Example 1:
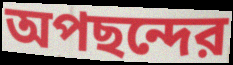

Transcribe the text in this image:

অপছন্দের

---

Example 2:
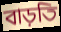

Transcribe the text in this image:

বাড়তি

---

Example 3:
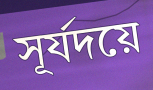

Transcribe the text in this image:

সূর্যদয়ে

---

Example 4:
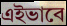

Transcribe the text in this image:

এইভাবে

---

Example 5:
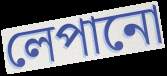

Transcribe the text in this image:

লেপানো